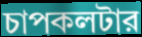
চাপকলটার